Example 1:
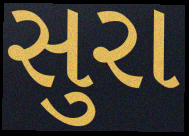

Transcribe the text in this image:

સુરા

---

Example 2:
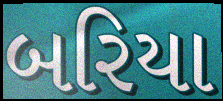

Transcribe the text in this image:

બરિયા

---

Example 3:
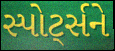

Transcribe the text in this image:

સ્પોર્ટ્સને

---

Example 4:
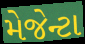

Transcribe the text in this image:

મેજેન્ટા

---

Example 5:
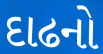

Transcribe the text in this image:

દાઢનો